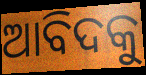
ଆବିଦକୁ